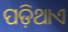
ପଡ଼ିଥାଏ